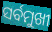
ସର୍ବମୁଖୀ